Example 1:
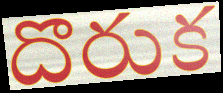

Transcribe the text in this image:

దొరుక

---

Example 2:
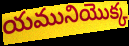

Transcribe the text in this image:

యమునియొక్క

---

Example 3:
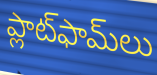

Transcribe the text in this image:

ప్లాట్‌ఫామ్‌లు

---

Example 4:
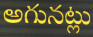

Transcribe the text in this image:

అగునట్లు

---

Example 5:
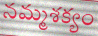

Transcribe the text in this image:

నమ్మశక్యం